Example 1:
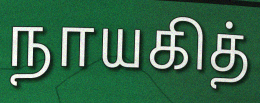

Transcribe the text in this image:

நாயகித்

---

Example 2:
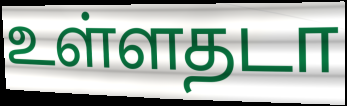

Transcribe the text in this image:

உள்ளதடா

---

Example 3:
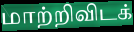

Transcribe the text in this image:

மாற்றிவிடக்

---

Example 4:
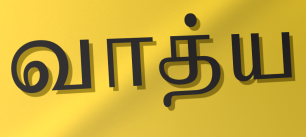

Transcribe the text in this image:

வாத்ய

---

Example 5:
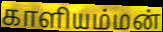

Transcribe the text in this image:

காளியம்மன்